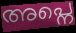
അപ്നെ